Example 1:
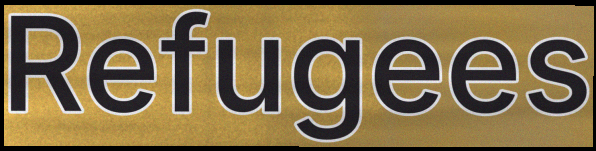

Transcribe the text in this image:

Refugees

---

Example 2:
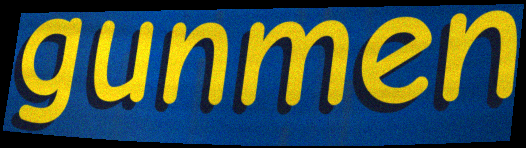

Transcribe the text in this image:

gunmen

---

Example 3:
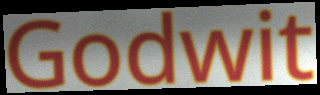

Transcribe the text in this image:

Godwit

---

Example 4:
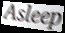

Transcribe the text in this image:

Asleep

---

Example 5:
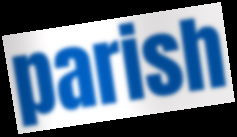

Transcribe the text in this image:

parish